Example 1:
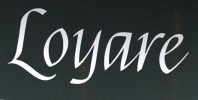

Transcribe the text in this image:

Loyare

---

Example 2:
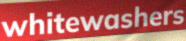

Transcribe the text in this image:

whitewashers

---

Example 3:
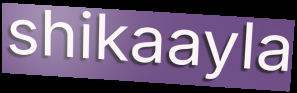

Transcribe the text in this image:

shikaayla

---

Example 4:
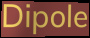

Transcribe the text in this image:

Dipole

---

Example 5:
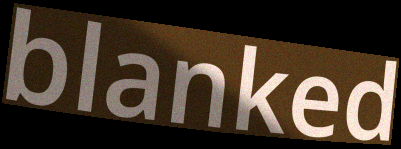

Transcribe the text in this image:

blanked